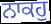
ਨਾਕਹੁ